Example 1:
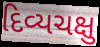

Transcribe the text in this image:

દિવ્યચક્ષુ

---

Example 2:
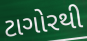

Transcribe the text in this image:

ટાગોરથી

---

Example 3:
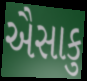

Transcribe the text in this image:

ઐસાકુ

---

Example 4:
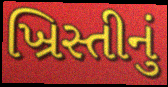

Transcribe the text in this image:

ખ્રિસ્તીનું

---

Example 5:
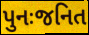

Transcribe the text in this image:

પુનઃજનિત